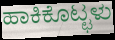
ಹಾಕಿಕೊಟ್ಟಳು